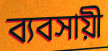
ব্যবসায়ী